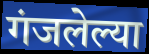
गंजलेल्या